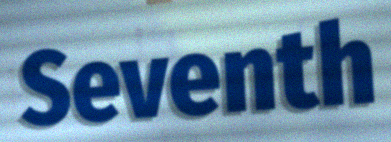
Seventh